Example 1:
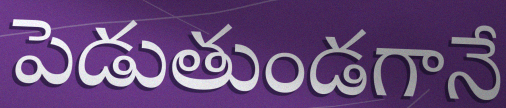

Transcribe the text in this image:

పెడుతుండగానే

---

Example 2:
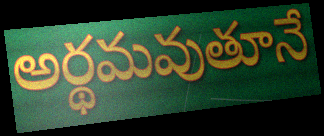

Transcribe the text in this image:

అర్థమవుతూనే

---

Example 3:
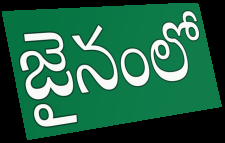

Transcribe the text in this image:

జైనంలో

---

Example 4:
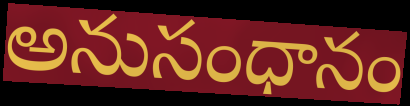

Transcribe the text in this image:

అనుసంధానం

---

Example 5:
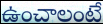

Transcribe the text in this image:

ఉంచాలంటే